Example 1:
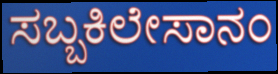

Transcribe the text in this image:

ಸಬ್ಬಕಿಲೇಸಾನಂ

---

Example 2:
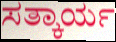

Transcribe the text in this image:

ಸತ್ಕಾರ್ಯ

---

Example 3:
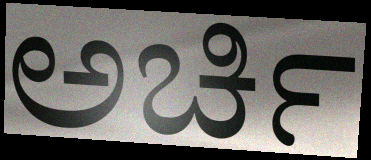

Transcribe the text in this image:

ಅರ್ಚಿ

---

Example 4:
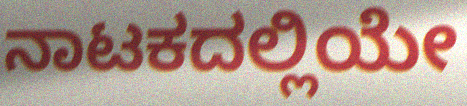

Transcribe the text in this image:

ನಾಟಕದಲ್ಲಿಯೇ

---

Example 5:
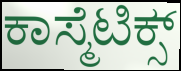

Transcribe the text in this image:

ಕಾಸ್ಮೆಟಿಕ್ಸ್